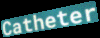
Catheter